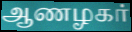
ஆணழகர்